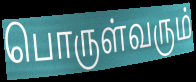
பொருள்வரும்